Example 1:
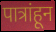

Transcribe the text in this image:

पात्रांहून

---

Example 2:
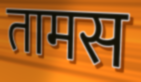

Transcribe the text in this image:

तामस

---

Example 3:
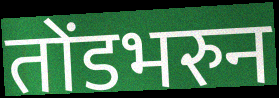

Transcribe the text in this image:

तोंडभरुन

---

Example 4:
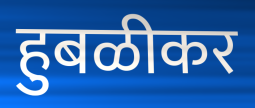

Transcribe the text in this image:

हुबळीकर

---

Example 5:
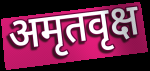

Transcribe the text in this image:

अमृतवृक्ष